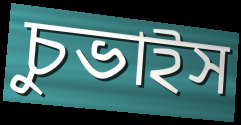
চুভাইস